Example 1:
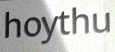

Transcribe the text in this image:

hoythu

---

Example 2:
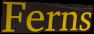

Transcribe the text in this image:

Ferns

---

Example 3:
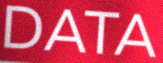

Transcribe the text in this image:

DATA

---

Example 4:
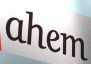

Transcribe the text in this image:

ahem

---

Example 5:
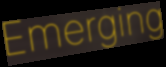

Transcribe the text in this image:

Emerging